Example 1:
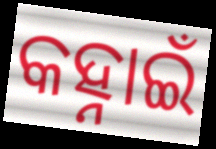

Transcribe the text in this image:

କହ୍ନାଇଁ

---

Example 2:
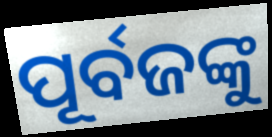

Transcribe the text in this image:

ପୂର୍ବଜଙ୍କୁ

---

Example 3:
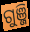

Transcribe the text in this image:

ଗୁଞ୍ଜି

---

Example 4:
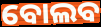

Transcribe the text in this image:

ବୋଲବ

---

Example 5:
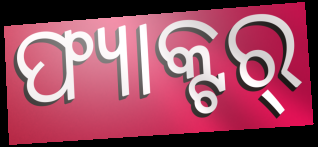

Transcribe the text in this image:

ଫ୍ୟାକ୍ଟର୍